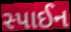
સ્પાઈન